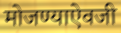
मोजण्याऐवजी